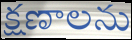
క్షణాలను